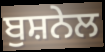
ਬੁਸ਼ਨੇਲ